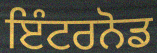
ਇੰਟਰਨੋਡ